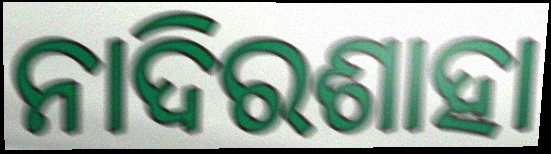
ନାଦିରଶାହା